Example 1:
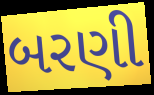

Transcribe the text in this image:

બરણી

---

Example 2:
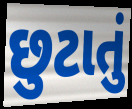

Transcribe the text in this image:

છુટાતું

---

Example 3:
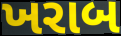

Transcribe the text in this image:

ખરાબ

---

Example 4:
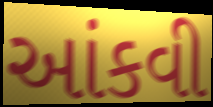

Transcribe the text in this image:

આંકવી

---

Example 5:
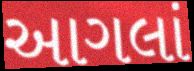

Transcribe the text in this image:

આગલાં